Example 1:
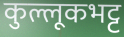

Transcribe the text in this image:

कुल्लूकभट्ट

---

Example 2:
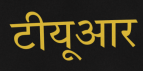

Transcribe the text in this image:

टीयूआर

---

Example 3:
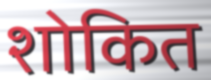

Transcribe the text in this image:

शोकित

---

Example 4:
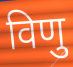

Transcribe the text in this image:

विणु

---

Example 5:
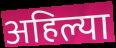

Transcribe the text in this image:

अहिल्या